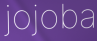
jojoba